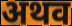
अथव